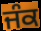
ਜੰਕ